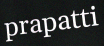
prapatti